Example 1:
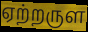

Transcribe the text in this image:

ஏற்றருள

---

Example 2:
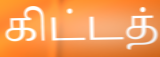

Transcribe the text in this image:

கிட்டத்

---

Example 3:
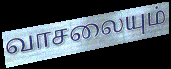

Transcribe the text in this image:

வாசலையும்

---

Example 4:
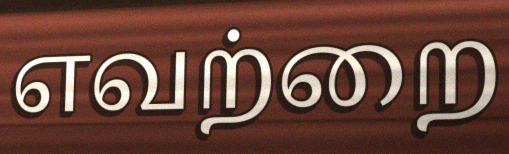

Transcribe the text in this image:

எவற்றை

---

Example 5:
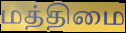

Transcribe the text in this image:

மத்திமை